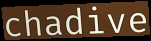
chadive